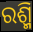
ରଶ୍ମି